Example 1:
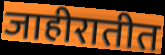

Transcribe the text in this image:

जाहीरातीत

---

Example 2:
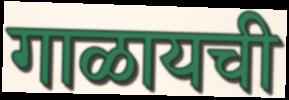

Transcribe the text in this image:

गाळायची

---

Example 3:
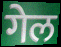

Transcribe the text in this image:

गेल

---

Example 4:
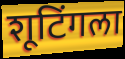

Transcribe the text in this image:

शूटिंगला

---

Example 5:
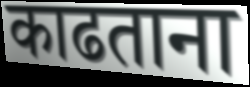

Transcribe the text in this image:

काढताना